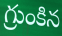
గ్రుంకిన